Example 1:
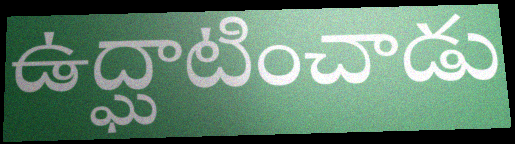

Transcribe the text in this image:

ఉద్ఘాటించాడు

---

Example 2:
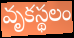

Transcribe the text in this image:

వృకస్థలం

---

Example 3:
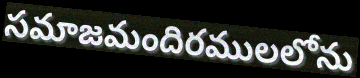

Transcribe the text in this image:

సమాజమందిరములలోను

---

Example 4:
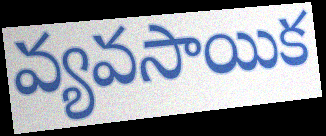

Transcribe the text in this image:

వ్యవసాయిక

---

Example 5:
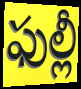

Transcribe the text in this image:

ఫుల్లీ